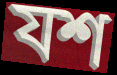
যশ